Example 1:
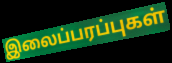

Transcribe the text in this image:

இலைப்பரப்புகள்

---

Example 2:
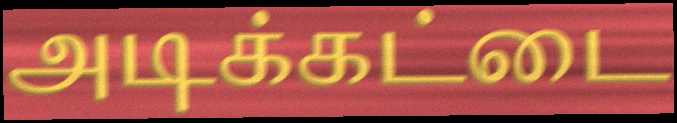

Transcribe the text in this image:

அடிக்கட்டை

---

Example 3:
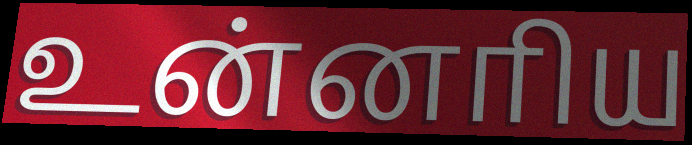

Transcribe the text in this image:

உன்னரிய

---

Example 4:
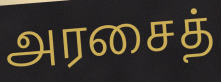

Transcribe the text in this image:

அரசைத்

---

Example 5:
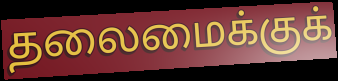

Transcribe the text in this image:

தலைமைக்குக்